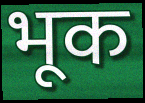
भूक